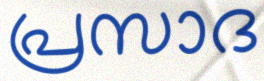
പ്രസാദ